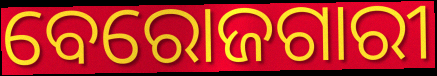
ବେରୋଜଗାରୀ